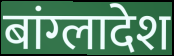
बांग्‍लादेश